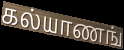
கல்யாணங்